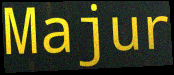
Majur